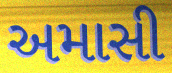
અમાસી